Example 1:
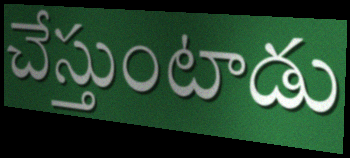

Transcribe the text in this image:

చేస్తుంటాడు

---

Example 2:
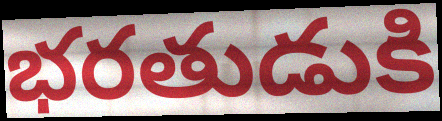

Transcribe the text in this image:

భరతుడుకి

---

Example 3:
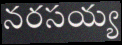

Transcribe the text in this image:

నరసయ్య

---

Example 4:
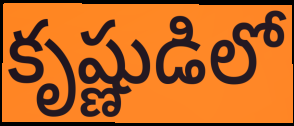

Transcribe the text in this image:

కృష్ణుడిలో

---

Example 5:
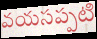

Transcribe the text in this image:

వయసప్పటి